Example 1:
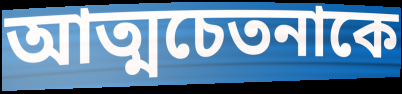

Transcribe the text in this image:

আত্মচেতনাকে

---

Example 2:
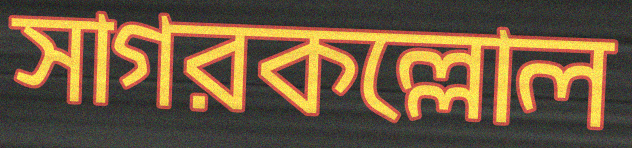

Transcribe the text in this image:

সাগরকল্লোল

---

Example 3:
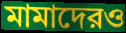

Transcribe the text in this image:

মামাদেরও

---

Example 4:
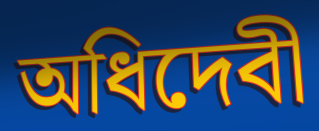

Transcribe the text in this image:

অধিদেবী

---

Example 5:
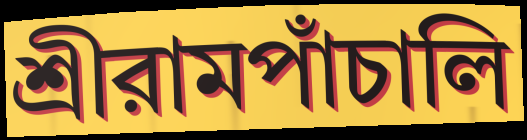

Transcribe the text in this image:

শ্রীরামপাঁচালি